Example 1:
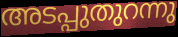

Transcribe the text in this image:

അടപ്പുതുറന്നു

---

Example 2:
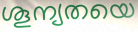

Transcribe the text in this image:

ശൂന്യതയെ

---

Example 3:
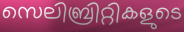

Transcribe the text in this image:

സെലിബ്രിറ്റികളുടെ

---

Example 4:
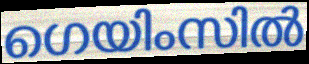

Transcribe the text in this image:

ഗെയിംസിൽ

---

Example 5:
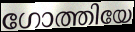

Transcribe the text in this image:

ഗോത്തിയേ